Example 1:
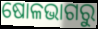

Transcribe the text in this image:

ଷୋଳଭାଗରୁ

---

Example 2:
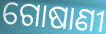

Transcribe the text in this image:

ଗୋଷାଣୀ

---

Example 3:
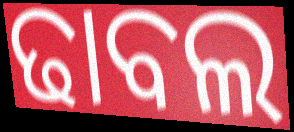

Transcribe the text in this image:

ଢାବଲ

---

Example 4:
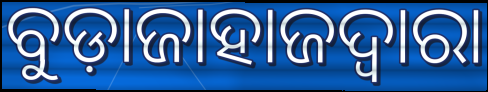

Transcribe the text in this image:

ବୁଡ଼ାଜାହାଜଦ୍ୱାରା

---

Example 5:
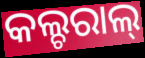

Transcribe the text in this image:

କଲ୍ଚରାଲ୍